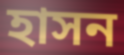
হাসন